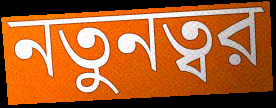
নতুনত্বর